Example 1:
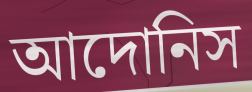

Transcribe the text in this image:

আদোনিস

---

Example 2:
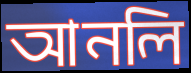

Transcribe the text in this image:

আনলি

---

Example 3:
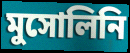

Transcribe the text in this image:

মুসোলিনি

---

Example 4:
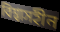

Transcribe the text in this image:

বিশ্বাসহীন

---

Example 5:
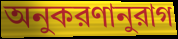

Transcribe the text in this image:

অনুকরণানুরাগ